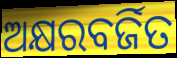
ଅକ୍ଷରବର୍ଜିତ